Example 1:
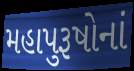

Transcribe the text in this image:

મહાપુરૂષોનાં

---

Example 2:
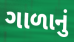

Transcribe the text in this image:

ગાળાનું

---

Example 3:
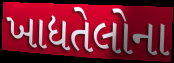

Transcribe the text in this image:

ખાદ્યતેલોના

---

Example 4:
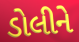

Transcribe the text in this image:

ડોલીને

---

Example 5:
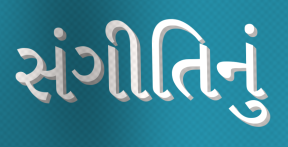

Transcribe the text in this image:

સંગીતિનું